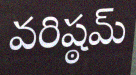
వరిష్ఠమ్